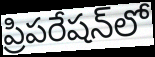
ప్రిపరేషన్‌లో